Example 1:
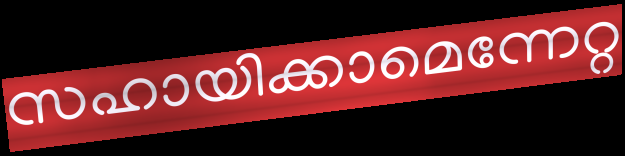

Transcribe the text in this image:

സഹായിക്കാമെന്നേറ്റ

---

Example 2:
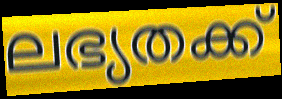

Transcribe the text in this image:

ലഭ്യതക്ക്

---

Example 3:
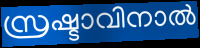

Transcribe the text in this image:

സ്രഷ്ടാവിനാൽ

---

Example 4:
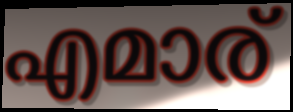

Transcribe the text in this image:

എമാര്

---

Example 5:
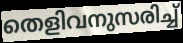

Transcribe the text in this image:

തെളിവനുസരിച്ച്